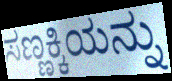
ಸಣ್ಣಕ್ಕಿಯನ್ನು